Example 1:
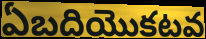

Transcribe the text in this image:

ఏబదియొకటవ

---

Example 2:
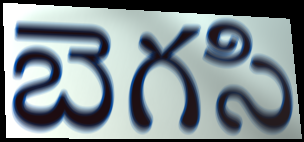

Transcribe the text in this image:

బెగసి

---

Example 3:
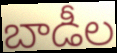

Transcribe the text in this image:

బాడీల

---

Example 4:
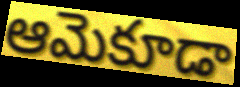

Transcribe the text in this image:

ఆమెకూడా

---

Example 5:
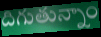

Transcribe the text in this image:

దిగుతున్నాం